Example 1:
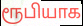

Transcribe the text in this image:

ரூபியாக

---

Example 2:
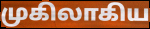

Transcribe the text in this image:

முகிலாகிய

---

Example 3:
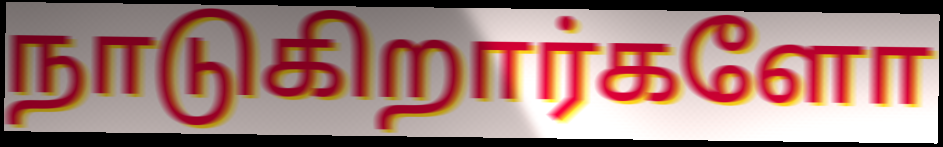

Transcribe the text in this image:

நாடுகிறார்களோ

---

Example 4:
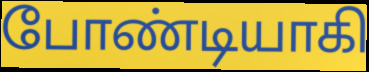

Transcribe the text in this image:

போண்டியாகி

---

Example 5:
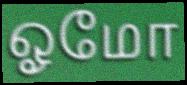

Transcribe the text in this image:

ஓமோ